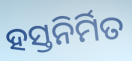
ହସ୍ତନିର୍ମିତ